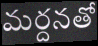
మర్దనతో